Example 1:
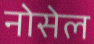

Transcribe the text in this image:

नोसेल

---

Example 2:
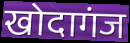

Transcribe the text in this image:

खोदागंज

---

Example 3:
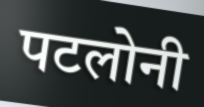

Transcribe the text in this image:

पटलोनी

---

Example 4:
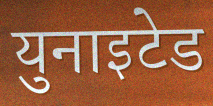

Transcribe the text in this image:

युनाइटेड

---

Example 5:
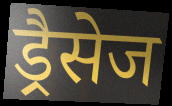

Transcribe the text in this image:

ड्रैसेज